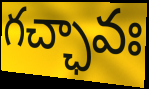
గచ్ఛావః